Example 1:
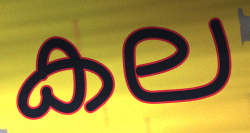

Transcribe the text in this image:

കല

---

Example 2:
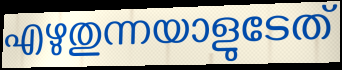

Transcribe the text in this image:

എഴുതുന്നയാളുടേത്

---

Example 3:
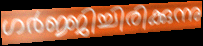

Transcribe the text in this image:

ഗർജ്ജിച്ചിരിക്കുന്നു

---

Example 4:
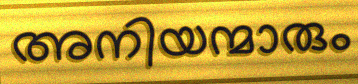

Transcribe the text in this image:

അനിയന്മാരും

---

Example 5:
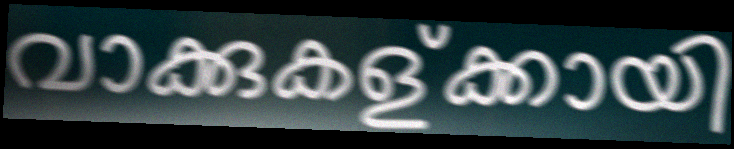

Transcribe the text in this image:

വാക്കുകള്ക്കായി